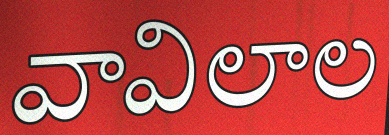
వావిలాల